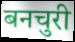
बनचुरी